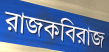
রাজকবিরাজ